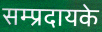
सम्प्रदायके